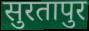
सुरतापुर